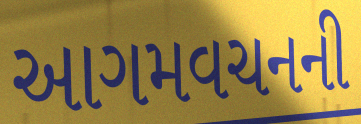
આગમવચનની